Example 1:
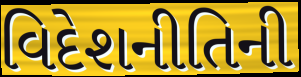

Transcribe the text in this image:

વિદેશનીતિની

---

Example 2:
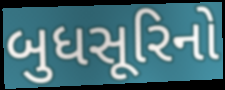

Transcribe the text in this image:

બુધસૂરિનો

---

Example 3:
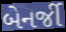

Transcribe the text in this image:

બેનર્જી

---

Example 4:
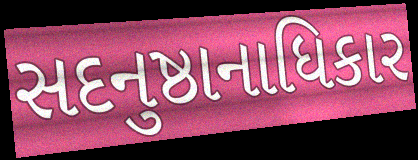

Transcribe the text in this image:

સદનુષ્ઠાનાધિકાર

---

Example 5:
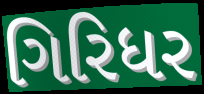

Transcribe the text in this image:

ગિરિધર